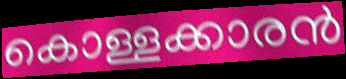
കൊള്ളക്കാരൻ